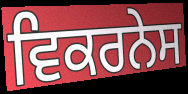
ਵਿਕਰਨੇਸ